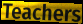
Teachers